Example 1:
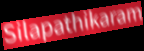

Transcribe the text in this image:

Silapathikaram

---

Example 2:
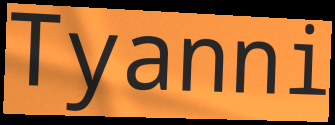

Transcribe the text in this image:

Tyanni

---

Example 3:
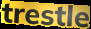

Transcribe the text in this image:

trestle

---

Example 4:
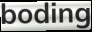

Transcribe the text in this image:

boding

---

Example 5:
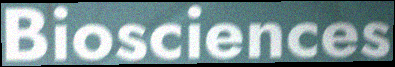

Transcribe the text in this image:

Biosciences